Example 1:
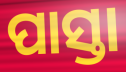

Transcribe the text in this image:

ପାସ୍ତା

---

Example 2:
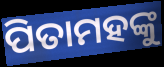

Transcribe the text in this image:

ପିତାମହଙ୍କୁ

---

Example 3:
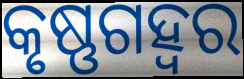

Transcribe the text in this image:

କୃଷ୍ଣଗହ୍ୱର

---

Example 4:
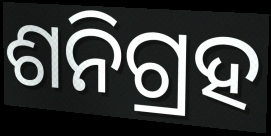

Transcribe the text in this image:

ଶନିଗ୍ରହ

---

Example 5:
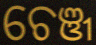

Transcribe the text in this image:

ଚେଞ୍ଜ